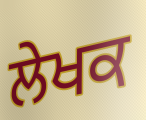
ਲੇਖਕ